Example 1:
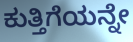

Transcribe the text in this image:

ಕುತ್ತಿಗೆಯನ್ನೇ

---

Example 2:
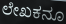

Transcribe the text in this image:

ಲೇಖಕನೂ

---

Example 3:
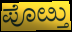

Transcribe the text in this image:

ಪೊೞ್ತು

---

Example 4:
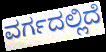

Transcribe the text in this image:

ವರ್ಗದಲ್ಲಿದೆ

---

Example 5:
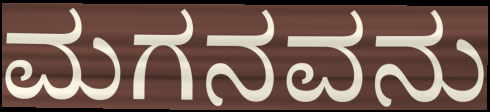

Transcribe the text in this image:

ಮಗನವನು